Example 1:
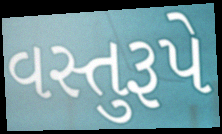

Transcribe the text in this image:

વસ્તુરૂપે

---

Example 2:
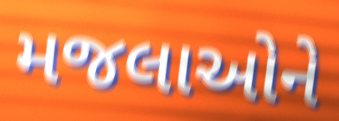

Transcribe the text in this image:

મજલાઓને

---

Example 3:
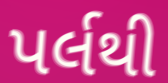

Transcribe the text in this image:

પર્લથી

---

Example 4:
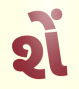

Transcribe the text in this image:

શેં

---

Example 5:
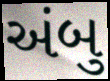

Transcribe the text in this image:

અંબુ